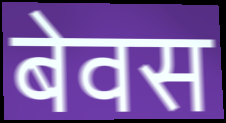
बेवस